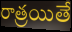
రాత్రయితే